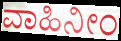
ವಾಹಿನೀಂ